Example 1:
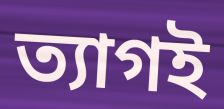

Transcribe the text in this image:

ত্যাগই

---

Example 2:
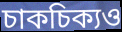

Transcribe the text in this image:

চাকচিক্যও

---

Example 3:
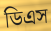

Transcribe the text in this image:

ডিএস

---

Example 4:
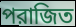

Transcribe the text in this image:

পরাজিত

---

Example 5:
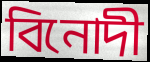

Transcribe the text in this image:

বিনোদী